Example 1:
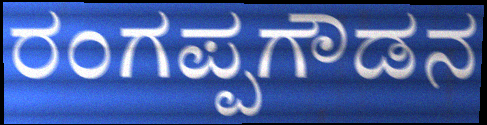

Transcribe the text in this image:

ರಂಗಪ್ಪಗೌಡನ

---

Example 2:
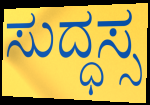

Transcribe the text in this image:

ಸುದ್ಧಸ್ಸ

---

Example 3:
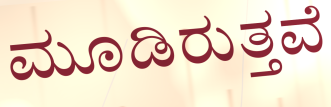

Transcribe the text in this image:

ಮೂಡಿರುತ್ತವೆ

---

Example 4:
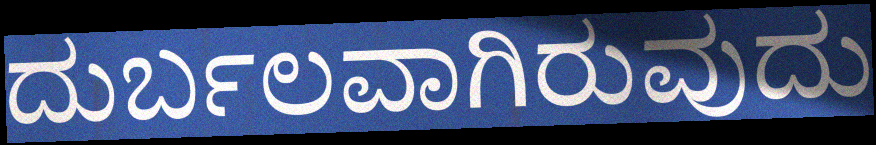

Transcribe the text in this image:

ದುರ್ಬಲವಾಗಿರುವುದು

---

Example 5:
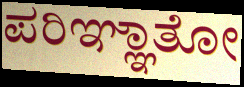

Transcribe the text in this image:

ಪರಿಞ್ಞಾತೋ